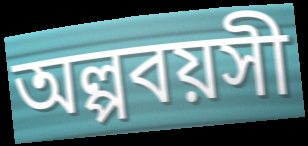
অল্পবয়সী